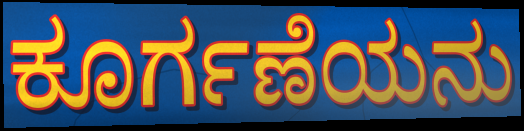
ಕೂರ್ಗಣೆಯನು